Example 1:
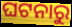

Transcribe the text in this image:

ଘଟନାରୁ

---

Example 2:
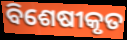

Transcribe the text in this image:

ବିଶେଷୀକୃତ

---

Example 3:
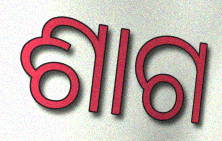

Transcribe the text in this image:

ଶାଗ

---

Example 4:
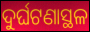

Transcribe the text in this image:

ଦୁର୍ଘଟଣାସ୍ଥଳ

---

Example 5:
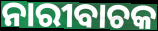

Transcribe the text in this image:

ନାରୀବାଚକ